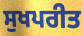
ਸੁਖਪਰੀਤ